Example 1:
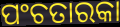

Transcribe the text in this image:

ପଂଚତାରକା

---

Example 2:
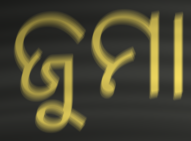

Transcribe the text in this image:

ଜୁମା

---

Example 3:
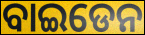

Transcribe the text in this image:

ବାଇଡେନ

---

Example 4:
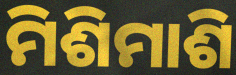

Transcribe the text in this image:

ମିଶିମାଶି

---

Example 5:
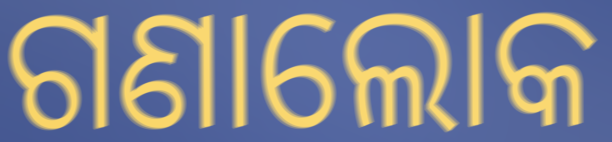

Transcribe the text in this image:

ଗଣାଲୋକ